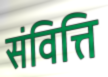
संवित्ति